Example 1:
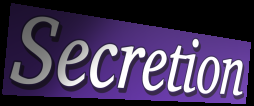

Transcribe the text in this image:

Secretion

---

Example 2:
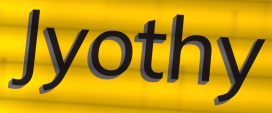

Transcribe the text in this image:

Jyothy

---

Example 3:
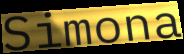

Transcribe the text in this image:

Simona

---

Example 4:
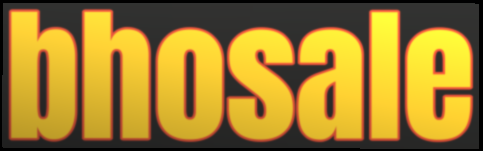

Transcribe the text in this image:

bhosale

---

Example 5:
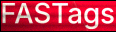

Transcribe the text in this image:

FASTags